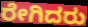
ರೇಗಿದರು